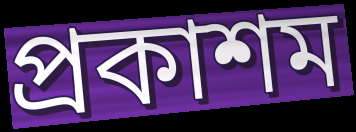
প্ৰকাশম